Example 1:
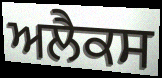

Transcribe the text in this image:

ਅਲੈਕਸ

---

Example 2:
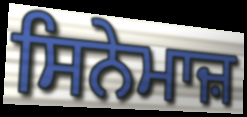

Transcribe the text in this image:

ਸਿਨੇਮਾਜ਼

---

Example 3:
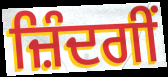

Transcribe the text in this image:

ਜ਼ਿੰਦਗੀਂ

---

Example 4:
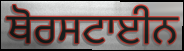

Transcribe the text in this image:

ਥੋਰਸਟਾਈਨ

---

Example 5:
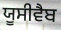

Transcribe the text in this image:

ਯੂਸੀਵੈਬ